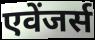
एवेंजर्स